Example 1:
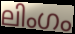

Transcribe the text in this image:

ലിംഗം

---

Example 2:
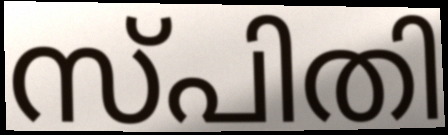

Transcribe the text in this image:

സ്പിതി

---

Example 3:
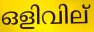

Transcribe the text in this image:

ഒളിവില്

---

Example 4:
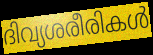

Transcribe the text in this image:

ദിവ്യശരീരികൾ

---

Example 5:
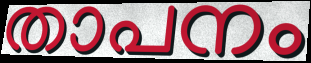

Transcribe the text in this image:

താപനം